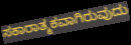
ಸಕಾರಾತ್ಮಕವಾಗಿರುವುದು